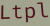
Ltpl